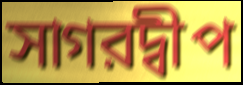
সাগরদ্বীপ